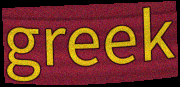
greek